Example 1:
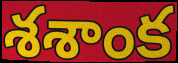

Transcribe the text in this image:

శశాంక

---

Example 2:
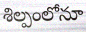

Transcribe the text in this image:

శిల్పంలోనూ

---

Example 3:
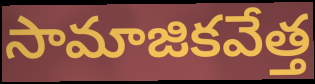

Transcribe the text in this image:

సామాజికవేత్త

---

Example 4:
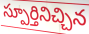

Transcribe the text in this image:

స్పూర్తినిచ్చిన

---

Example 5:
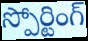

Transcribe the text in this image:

స్పోర్టింగ్